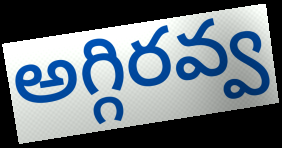
అగ్గిరవ్వ